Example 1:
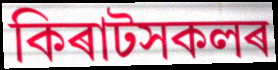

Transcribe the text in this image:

কিৰাটসকলৰ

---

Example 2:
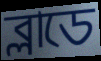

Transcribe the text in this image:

ব্লাডে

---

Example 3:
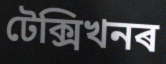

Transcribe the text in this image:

টেক্সিখনৰ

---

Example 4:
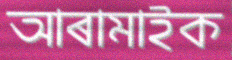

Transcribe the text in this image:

আৰামাইক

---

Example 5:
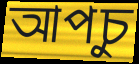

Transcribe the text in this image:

আপচু